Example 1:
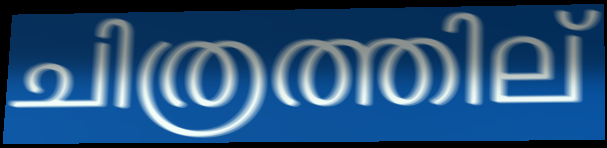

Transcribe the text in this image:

ചിത്രത്തില്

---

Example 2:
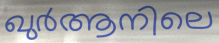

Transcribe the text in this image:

ഖുർആനിലെ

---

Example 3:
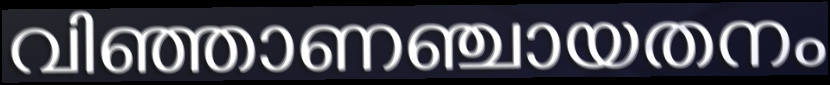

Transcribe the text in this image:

വിഞ്ഞാണഞ്ചായതനം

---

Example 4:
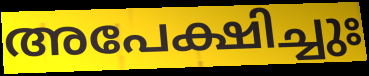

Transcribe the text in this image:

അപേക്ഷിച്ചുഃ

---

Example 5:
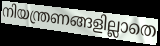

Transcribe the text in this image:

നിയന്ത്രണങ്ങളില്ലാതെ